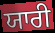
ਯਾਰੀ